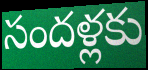
సందళ్లకు